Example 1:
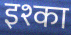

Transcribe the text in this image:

इश्का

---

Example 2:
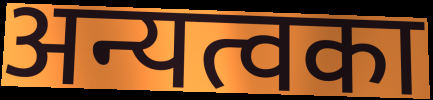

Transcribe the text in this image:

अन्यत्वका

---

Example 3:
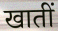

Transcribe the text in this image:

खातीं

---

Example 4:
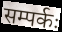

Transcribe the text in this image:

सम्पर्कः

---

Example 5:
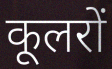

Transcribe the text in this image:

कूलरों